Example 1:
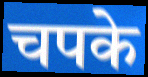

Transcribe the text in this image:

चपके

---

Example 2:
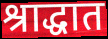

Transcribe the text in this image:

श्राद्धात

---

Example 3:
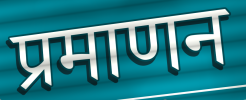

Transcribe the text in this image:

प्रमाणन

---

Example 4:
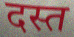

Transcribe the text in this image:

दस्त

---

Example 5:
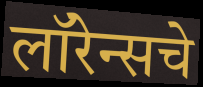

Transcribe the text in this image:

लॉरेन्सचे